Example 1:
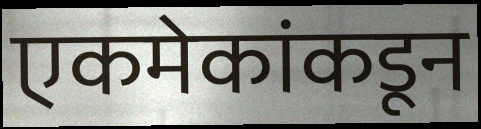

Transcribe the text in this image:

एकमेकांकडून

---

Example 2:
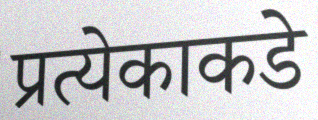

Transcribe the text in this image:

प्रत्येकाकडे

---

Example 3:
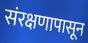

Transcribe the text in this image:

संरक्षणापासून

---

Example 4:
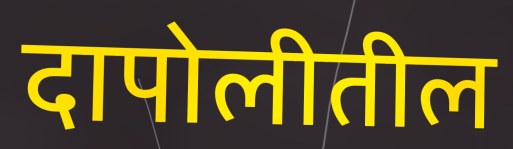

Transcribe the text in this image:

दापोलीतील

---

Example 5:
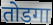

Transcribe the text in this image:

तोडगा